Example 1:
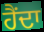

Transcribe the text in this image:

ਹੈਂਦਾ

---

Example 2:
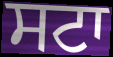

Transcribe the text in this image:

ਸਟਾ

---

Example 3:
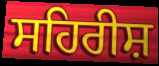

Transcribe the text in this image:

ਸਹਿਰੀਸ਼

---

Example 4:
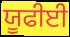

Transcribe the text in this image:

ਯੂਫੀਈ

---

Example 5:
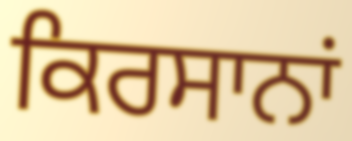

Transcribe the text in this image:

ਕਿਰਸਾਨਾਂ